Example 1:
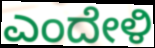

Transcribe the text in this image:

ಎಂದೇಳಿ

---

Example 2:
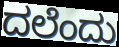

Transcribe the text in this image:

ದಲೆಂದು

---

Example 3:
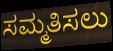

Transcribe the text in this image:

ಸಮ್ಮತಿಸಲು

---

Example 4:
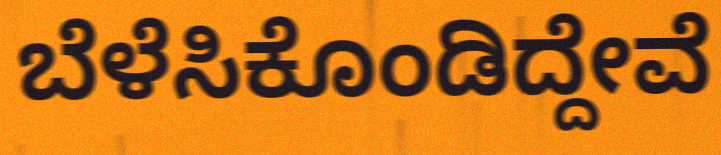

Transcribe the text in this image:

ಬೆಳೆಸಿಕೊಂಡಿದ್ದೇವೆ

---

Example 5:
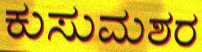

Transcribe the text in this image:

ಕುಸುಮಶರ